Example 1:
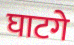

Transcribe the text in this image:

घाटगे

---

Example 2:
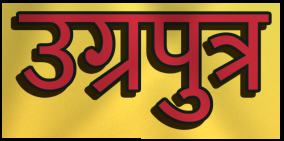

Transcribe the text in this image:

उग्रपुत्र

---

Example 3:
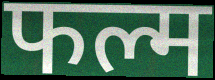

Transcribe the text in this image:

फल्म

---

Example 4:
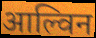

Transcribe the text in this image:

आल्विन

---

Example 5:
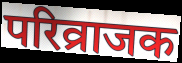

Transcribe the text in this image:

परिव्राजक